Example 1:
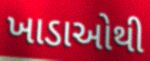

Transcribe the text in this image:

ખાડાઓથી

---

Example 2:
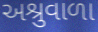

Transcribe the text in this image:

અશ્રુવાળા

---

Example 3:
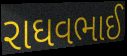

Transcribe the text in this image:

રાઘવભાઈ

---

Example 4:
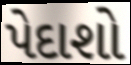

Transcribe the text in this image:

પેદાશો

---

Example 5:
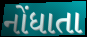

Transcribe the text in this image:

નોંધાતા